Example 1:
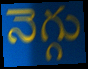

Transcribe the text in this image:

నెగ్గు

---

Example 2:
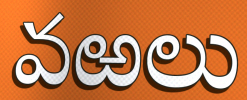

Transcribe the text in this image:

వఱలు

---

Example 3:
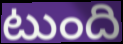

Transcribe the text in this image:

టుంది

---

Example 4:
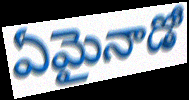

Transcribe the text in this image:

ఏమైనాడో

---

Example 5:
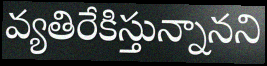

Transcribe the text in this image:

వ్యతిరేకిస్తున్నానని